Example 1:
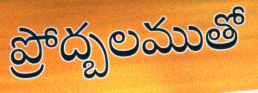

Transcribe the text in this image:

ప్రోద్బలముతో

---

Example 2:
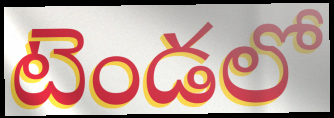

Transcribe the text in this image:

టెండలో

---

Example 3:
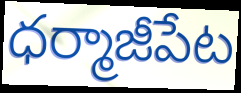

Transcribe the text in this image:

ధర్మాజీపేట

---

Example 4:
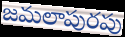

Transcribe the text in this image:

జమలాపురపు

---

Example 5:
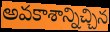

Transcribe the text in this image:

అవకాశాన్నిచ్చిన